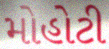
મોહોટી